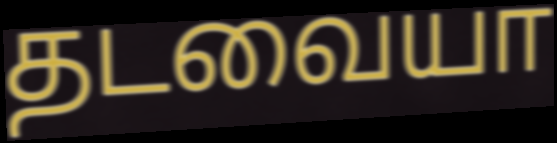
தடவையா